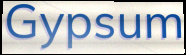
Gypsum